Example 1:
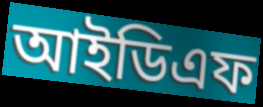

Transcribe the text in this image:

আইডিএফ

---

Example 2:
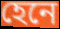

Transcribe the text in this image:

হেনে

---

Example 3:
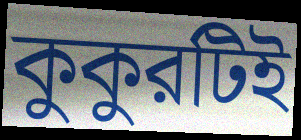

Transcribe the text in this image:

কুকুরটিই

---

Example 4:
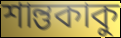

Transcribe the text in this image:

শান্তুকাকু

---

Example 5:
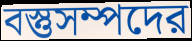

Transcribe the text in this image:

বস্তুসম্পদের